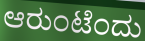
ಆರುಂಟೆಂದು